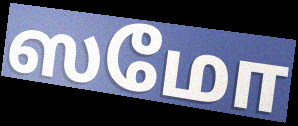
ஸமோ